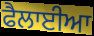
ਫੈਲਾਈਆ